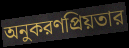
অনুকরণপ্রিয়তার